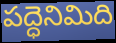
పద్ధెనిమిది